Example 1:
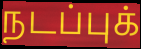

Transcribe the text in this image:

நடப்புக்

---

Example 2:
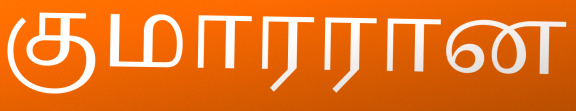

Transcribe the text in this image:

குமாரரான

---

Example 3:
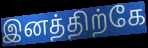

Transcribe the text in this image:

இனத்திற்கே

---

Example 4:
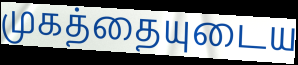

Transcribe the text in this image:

முகத்தையுடைய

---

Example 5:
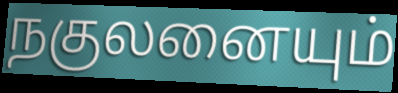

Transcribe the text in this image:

நகுலனையும்